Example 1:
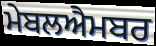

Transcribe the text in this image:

ਮੇਬਲਐਮਬਰ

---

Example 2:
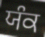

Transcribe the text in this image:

ਯੰਕ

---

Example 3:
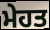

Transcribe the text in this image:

ਮੇਹਤ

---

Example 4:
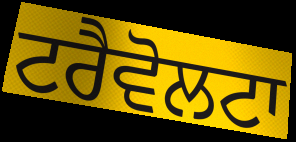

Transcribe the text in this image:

ਟਰੈਵੋਲਟਾ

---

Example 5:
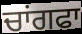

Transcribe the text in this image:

ਚਾਂਗਫਾ